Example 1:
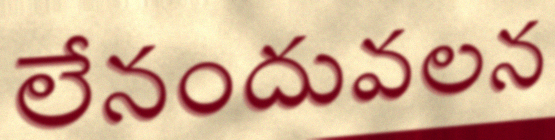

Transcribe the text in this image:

లేనందువలన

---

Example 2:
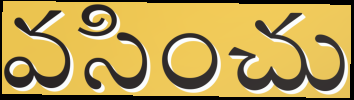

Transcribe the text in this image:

వసించు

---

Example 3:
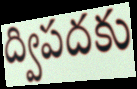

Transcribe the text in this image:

ద్విపదకు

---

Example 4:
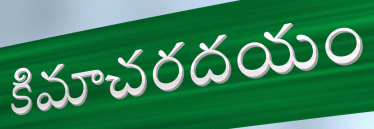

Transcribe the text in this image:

కిమాచరదయం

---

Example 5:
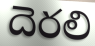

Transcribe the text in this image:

దెరలి